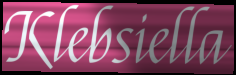
Klebsiella